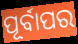
ପୂର୍ବାପର